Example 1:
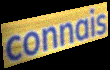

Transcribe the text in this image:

connais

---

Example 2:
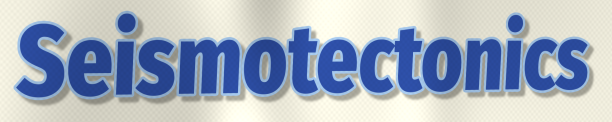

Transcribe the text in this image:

Seismotectonics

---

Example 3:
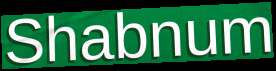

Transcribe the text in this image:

Shabnum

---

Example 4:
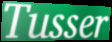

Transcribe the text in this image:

Tusser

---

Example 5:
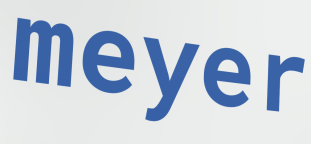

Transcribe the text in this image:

meyer